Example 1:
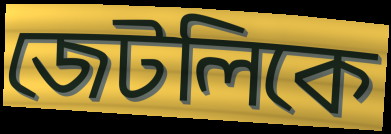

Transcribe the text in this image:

জেটলিকে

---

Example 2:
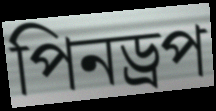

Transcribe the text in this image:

পিনড্রপ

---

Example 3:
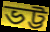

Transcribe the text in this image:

ভট্ট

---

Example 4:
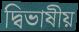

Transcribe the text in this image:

দ্বিভাষীয়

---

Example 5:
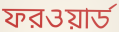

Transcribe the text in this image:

ফরওয়ার্ড